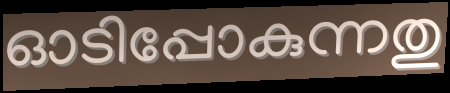
ഓടിപ്പോകുന്നതു